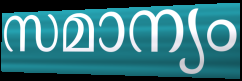
സമാന്യം